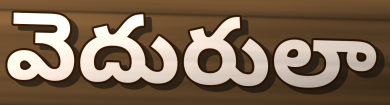
వెదురులా